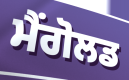
ਮੈਂਗੋਲਡ